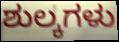
ಶುಲ್ಕಗಳು